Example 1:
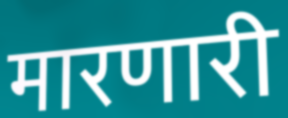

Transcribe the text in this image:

मारणारी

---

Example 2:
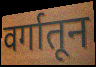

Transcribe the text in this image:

वर्गातून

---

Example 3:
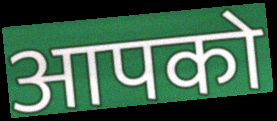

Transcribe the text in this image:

आपको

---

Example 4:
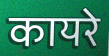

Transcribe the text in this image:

कायरे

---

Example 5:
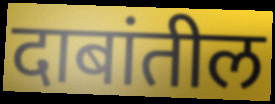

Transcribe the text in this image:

दाबांतील